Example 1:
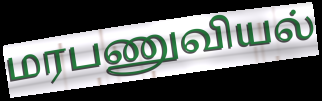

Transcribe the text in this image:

மரபணுவியல்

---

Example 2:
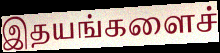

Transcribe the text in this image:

இதயங்களைச்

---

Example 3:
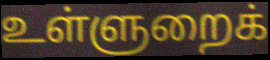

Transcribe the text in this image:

உள்ளுறைக்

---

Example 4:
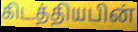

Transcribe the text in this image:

கிடத்தியபின்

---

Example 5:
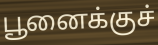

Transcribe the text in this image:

பூனைக்குச்